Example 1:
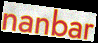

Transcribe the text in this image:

nanbar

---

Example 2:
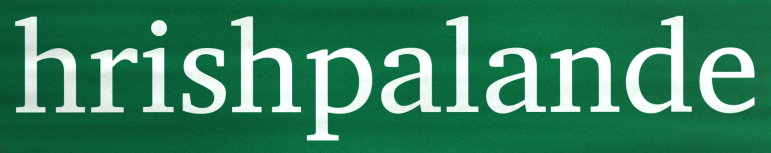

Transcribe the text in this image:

hrishpalande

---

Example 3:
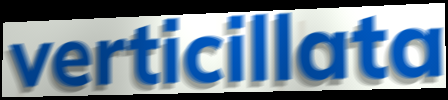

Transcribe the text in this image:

verticillata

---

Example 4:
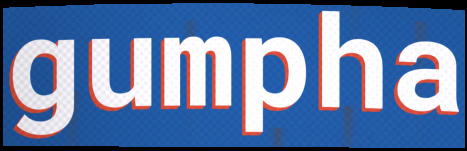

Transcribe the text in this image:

gumpha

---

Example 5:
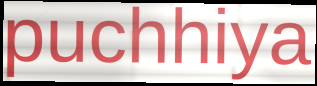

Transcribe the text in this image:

puchhiya